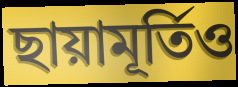
ছায়ামূর্তিও